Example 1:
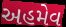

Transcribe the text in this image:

અહમેવ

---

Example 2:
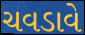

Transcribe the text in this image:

ચવડાવે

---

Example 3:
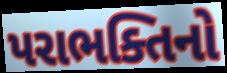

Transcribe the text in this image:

પરાભક્તિનો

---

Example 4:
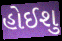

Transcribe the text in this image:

હોઈશુ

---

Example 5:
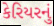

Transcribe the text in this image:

કેરિયરનું